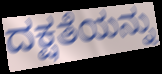
ದಕ್ಷತೆಯನ್ನು